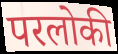
परलोकी